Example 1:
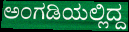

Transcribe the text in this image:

ಅಂಗಡಿಯಲ್ಲಿದ್ದ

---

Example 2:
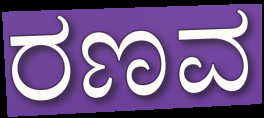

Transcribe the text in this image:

ರಣವ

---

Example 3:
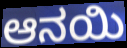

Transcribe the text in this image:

ಆನಯಿ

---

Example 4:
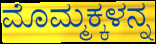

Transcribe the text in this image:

ಮೊಮ್ಮಕ್ಕಳನ್ನ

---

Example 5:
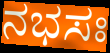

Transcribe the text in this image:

ನಭಸಃ